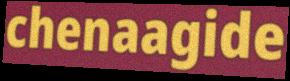
chenaagide